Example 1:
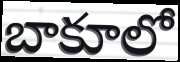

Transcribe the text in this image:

బాకూలో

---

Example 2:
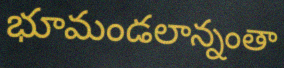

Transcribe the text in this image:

భూమండలాన్నంతా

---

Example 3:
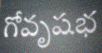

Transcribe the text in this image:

గోవృషభ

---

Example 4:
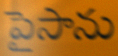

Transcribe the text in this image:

పైసాను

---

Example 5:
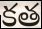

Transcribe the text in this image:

కత